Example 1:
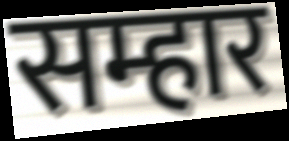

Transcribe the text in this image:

सम्हार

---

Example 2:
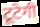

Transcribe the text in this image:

टूटेगी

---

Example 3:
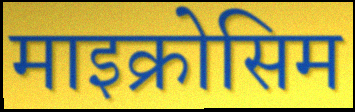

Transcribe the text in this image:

माइक्रोसिम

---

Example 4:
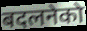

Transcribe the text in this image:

बदलनेको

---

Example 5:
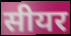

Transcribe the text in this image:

सीयर